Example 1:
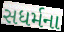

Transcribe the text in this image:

સધર્મના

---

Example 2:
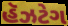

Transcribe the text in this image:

હૅઝટેગ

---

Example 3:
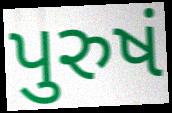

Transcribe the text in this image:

પુરુષં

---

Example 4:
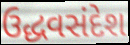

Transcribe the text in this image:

ઉદ્ધવસંદેશ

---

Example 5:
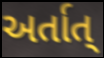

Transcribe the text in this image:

અર્તાત્